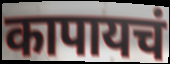
कापायचं